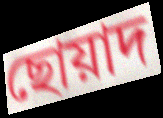
ছোয়াদ